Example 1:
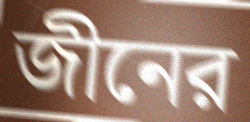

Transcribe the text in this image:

জীনের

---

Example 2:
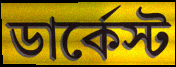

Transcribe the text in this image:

ডার্কেস্ট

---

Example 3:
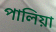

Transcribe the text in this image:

পালিয়া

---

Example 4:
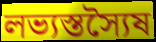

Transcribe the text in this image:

লভ্যস্তস্যৈষ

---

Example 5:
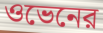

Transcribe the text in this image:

ওভেনের